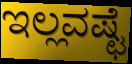
ಇಲ್ಲವಷ್ಟೆ